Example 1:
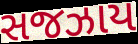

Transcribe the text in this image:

સજઝાય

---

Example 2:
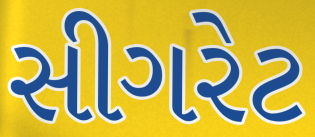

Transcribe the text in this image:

સીગરેટ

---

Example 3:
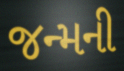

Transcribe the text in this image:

જન્મની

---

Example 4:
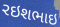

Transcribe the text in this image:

રઇશભાઇ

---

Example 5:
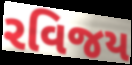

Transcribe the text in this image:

રવિજય